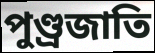
পুণ্ড্রজাতি